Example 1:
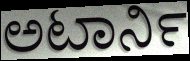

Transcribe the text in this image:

ಅಟಾರ್ನಿ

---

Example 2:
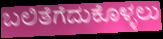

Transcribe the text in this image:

ಬಲಿತೆಗೆದುಕೊಳ್ಳಲು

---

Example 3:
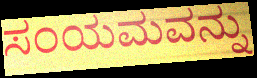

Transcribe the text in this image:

ಸಂಯಮವನ್ನು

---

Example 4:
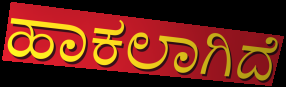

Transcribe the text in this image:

ಹಾಕಲಾಗಿದೆ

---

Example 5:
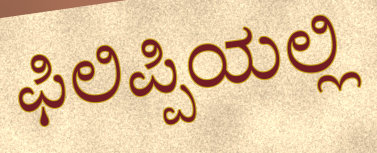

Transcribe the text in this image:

ಫಿಲಿಪ್ಪಿಯಲ್ಲಿ